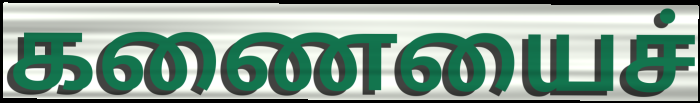
கணையைச்